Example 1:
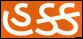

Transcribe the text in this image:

હક્ક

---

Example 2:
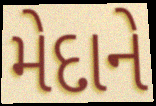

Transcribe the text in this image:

મેદાને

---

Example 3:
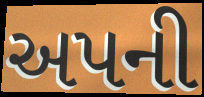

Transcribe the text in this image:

અપની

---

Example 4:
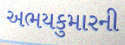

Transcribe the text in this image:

અભયકુમારની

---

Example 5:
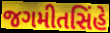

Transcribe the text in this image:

જગમીતસિંહે